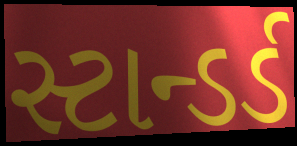
સ્ટાન્ડર્ડ